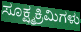
ಸೂಕ್ಷ್ಮಕ್ರಿಮಿಗಳು